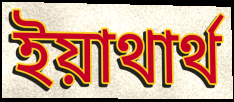
ইয়াথার্থ